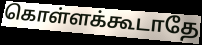
கொள்ளக்கூடாதே